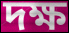
দক্ষ